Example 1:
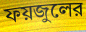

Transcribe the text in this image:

ফয়জুলের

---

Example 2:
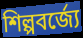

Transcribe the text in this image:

শিল্পবর্জ্যে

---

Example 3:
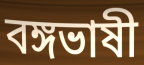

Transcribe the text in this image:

বঙ্গভাষী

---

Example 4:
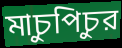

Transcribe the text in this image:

মাচুপিচুর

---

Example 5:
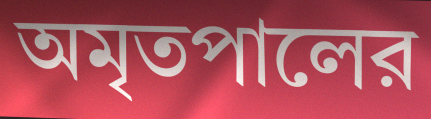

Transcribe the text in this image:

অমৃতপালের